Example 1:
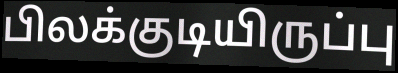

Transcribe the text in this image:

பிலக்குடியிருப்பு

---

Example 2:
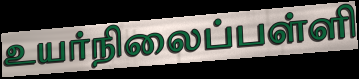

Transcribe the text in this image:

உயர்நிலைப்பள்ளி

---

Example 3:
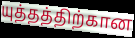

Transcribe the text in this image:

யுத்தத்திற்கான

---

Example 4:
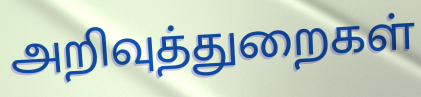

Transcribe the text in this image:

அறிவுத்துறைகள்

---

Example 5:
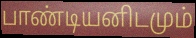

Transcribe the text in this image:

பாண்டியனிடமும்